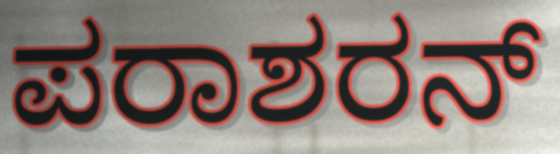
ಪರಾಶರನ್